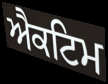
ਐਕਟਿਮ